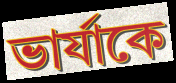
ভার্যাকে